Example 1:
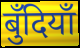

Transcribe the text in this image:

बुँदियाँ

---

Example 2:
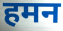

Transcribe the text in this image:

हमन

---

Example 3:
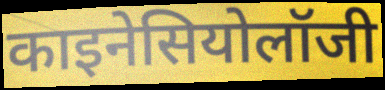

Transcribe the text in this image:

काइनेसियोलॉजी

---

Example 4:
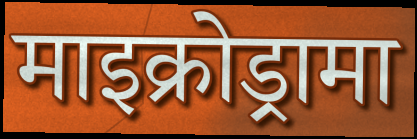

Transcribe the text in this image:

माइक्रोड्रामा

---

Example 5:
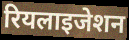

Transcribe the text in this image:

रियलाइजेशन